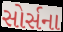
સોર્સના